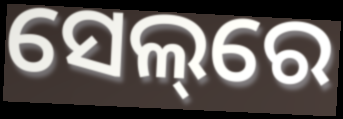
ସେଲ୍‌ରେ